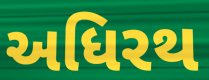
અધિરથ